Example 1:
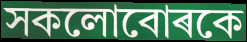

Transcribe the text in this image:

সকলোবোৰকে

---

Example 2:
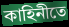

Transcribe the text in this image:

কাহিনীতে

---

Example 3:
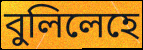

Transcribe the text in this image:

বুলিলেহে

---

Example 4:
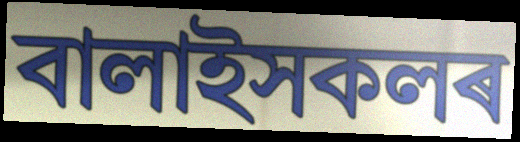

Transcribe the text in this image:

বালাইসকলৰ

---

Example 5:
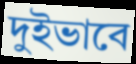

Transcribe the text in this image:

দুইভাবে